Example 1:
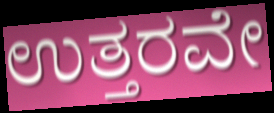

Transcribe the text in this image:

ಉತ್ತರವೇ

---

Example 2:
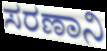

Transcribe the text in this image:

ಸರಣಾನಿ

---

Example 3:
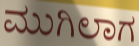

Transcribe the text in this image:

ಮುಗಿಲಾಗ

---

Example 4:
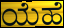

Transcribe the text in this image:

ಯೆಹೆ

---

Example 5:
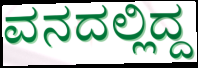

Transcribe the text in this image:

ವನದಲ್ಲಿದ್ದ